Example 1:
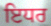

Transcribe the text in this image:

ਇਧਰ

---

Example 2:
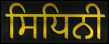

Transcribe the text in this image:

ਸਿਧਿਨੀ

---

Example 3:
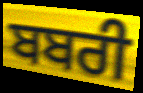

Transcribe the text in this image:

ਬਬਰੀ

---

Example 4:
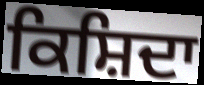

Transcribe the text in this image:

ਕਿਸ਼ਿਦਾ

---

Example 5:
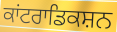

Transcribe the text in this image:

ਕਾਂਟਰਾਡਿਕਸ਼ਨ